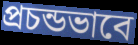
প্রচন্ডভাবে